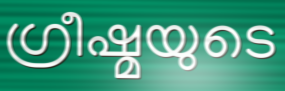
ഗ്രീഷ്മയുടെ